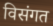
विसंगत